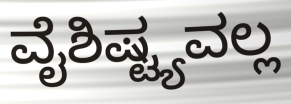
ವೈಶಿಷ್ಟ್ಯವಲ್ಲ